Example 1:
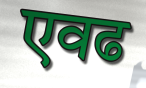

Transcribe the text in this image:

एवढ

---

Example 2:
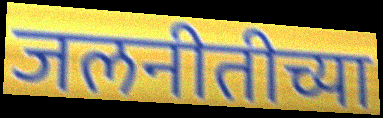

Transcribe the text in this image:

जलनीतीच्या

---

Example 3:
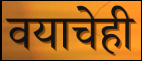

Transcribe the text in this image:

वयाचेही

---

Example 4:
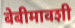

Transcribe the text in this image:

बेबीमावशी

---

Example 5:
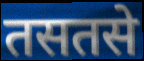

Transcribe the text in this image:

तसतसे